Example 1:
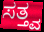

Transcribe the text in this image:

ಸತ್ತ್ವ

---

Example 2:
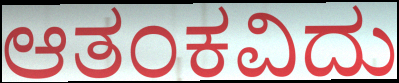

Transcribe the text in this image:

ಆತಂಕವಿದು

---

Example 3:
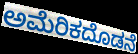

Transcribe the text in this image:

ಅಮೆರಿಕದೊಡನೆ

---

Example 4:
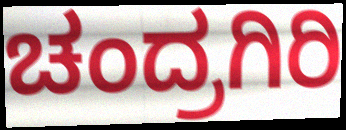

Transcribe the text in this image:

ಚಂದ್ರಗಿರಿ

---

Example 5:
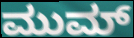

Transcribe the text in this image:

ಮುಮ್